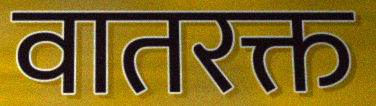
वातरक्त